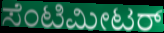
ಸೆಂಟಿಮೀಟರ್